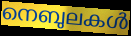
നെബുലകൾ